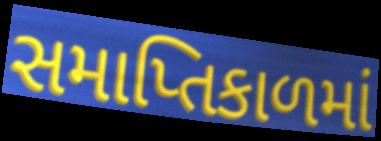
સમાપ્તિકાળમાં